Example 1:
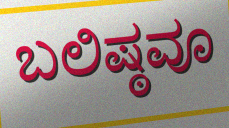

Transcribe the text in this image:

ಬಲಿಷ್ಠವೂ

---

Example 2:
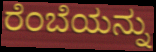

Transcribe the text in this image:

ರೆಂಬೆಯನ್ನು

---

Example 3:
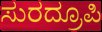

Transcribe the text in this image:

ಸುರದ್ರೂಪಿ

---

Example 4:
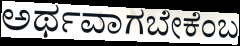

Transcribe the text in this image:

ಅರ್ಥವಾಗಬೇಕೆಂಬ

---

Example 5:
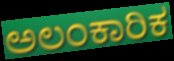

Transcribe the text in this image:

ಅಲಂಕಾರಿಕ